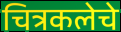
चित्रकलेचे